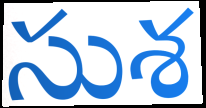
సుశ